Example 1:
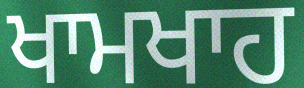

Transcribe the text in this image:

ਖਾਮਖਾਹ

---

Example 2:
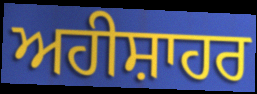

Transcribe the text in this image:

ਅਹੀਸ਼ਾਹਰ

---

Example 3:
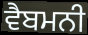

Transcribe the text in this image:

ਵੈਬਮਨੀ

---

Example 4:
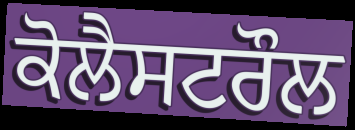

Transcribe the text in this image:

ਕੋਲੈਸਟਰੌਲ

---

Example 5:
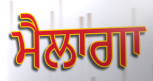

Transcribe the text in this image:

ਮੈਲਾਗਾ